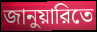
জানুয়ারিতে